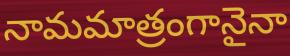
నామమాత్రంగానైనా